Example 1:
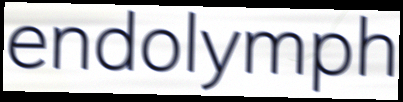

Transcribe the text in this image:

endolymph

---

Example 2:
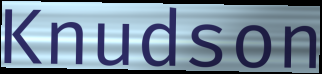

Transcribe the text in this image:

Knudson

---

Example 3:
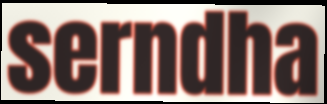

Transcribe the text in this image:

serndha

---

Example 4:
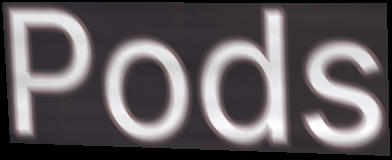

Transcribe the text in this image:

Pods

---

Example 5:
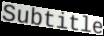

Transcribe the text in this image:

Subtitle